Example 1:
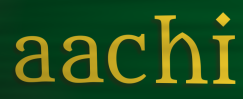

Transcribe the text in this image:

aachi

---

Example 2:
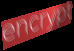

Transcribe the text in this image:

encrypt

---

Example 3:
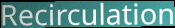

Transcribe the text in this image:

Recirculation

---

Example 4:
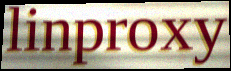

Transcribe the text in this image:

linproxy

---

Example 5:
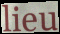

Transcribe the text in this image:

lieu